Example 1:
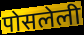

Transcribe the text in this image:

पोसलेली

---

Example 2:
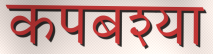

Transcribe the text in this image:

कपबश्या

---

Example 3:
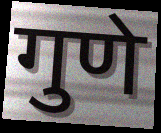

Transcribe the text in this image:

गुणे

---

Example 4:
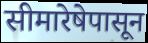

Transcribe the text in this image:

सीमारेषेपासून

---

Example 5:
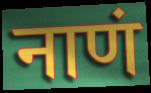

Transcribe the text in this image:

नाणं